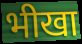
भीखा